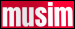
musim